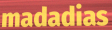
madadias